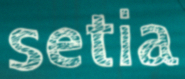
setia